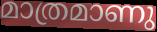
മാത്രമാണു